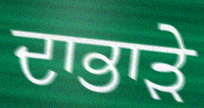
ਦਾਭਾੜੇ